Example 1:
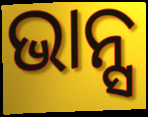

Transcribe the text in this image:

ଭାନ୍ସ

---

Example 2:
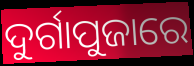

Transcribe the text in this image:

ଦୁର୍ଗାପୁଜାରେ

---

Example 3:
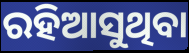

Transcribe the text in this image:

ରହିଆସୁଥିବା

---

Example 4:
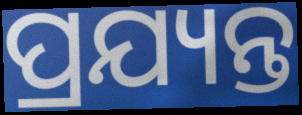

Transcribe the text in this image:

ପ୍ରଯ୍ୟନ୍ତ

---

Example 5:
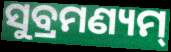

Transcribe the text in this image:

ସୁବ୍ରମଣ୍ୟମ୍